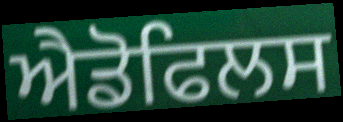
ਐਡੋਫਿਲਸ